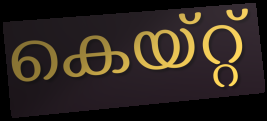
കെയ്റ്റ്